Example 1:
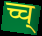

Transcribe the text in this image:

च्च्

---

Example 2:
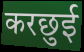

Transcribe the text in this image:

करछुई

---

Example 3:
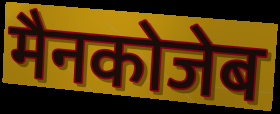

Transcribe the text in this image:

मैनकोजेब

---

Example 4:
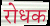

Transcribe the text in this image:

रोधक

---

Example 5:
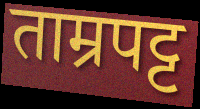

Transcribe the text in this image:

ताम्रपट्ट